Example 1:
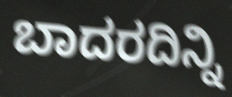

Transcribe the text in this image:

ಬಾದರದಿನ್ನಿ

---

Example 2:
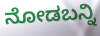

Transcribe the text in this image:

ನೋಡಬನ್ನಿ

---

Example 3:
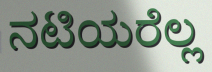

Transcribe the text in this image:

ನಟಿಯರೆಲ್ಲ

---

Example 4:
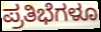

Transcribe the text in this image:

ಪ್ರತಿಭೆಗಳೂ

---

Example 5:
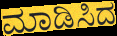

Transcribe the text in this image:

ಮಾಡಿಸಿದ